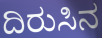
ದಿರುಸಿನ